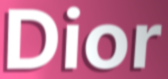
Dior